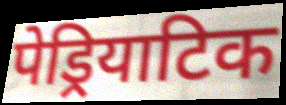
पेड्रियाटिक